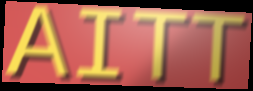
AITT